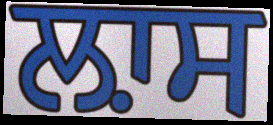
ਲ਼ਾਸ